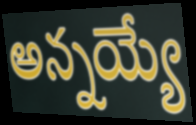
అన్నయ్యే